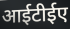
आईटीईए